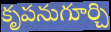
కృపనుగూర్చి